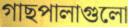
গাছপালাগুলো